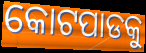
କୋଟପାଡକୁ